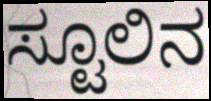
ಸ್ಟೂಲಿನ